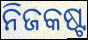
ନିଜକଷ୍ଟ